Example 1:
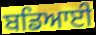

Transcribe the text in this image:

ਬਡਿਆਈ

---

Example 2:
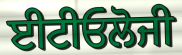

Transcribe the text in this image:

ਈਟੀਓਲੋਜੀ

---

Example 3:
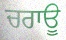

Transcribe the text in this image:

ਚਰਾਊ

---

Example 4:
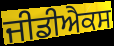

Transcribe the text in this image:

ਜੀਡੀਐਕਸ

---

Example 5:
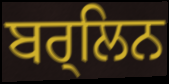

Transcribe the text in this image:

ਬਰ੍ਲਿਨ